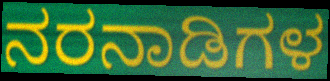
ನರನಾಡಿಗಳ